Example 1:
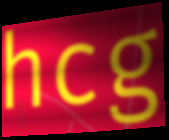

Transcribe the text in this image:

hcg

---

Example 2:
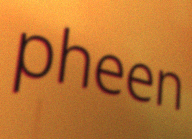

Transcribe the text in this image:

pheen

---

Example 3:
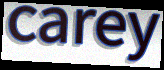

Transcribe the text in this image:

carey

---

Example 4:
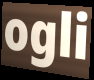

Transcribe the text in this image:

ogli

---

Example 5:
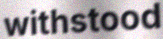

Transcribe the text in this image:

withstood